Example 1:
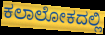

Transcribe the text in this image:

ಕಲಾಲೋಕದಲ್ಲಿ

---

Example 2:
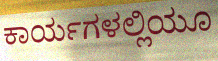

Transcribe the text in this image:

ಕಾರ್ಯಗಳಲ್ಲಿಯೂ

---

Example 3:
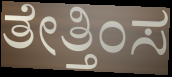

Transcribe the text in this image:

ತೇತ್ತಿಂಸ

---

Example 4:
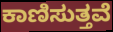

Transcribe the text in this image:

ಕಾಣಿಸುತ್ತವೆ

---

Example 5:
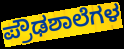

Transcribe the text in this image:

ಪ್ರೌಢಶಾಲೆಗಳ